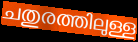
ചതുരത്തിലുള്ള